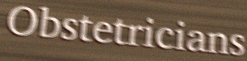
Obstetricians